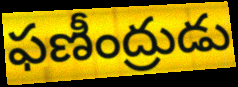
ఫణీంద్రుడు